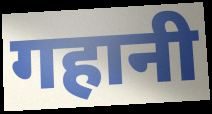
गहानी